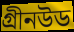
গ্রীনউড